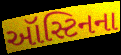
ઑસ્ટિનના